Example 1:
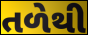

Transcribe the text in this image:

તળેથી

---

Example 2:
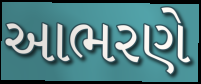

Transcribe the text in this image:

આભરણે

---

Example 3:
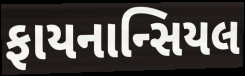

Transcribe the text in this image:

ફાયનાન્સિયલ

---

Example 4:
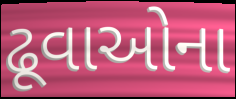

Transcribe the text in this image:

ઢૂવાઓના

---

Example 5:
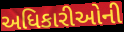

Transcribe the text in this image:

અધિકારીઓની